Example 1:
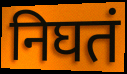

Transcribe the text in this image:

निघतं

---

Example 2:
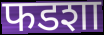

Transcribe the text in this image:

फडशा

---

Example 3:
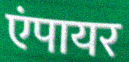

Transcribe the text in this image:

एंपायर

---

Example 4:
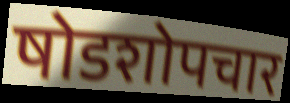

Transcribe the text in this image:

षोडशोपचार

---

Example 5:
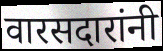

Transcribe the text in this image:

वारसदारांनी